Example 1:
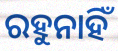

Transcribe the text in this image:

ରହୁନାହିଁ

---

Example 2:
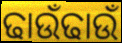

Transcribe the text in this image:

ଢାଉଁଢାଉଁ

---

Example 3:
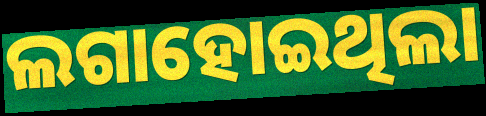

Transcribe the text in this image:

ଲଗାହୋଇଥିଲା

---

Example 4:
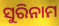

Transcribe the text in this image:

ସୁରିନାମ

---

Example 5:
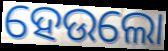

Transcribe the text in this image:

ହେଉଲୋ